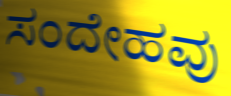
ಸಂದೇಹವು